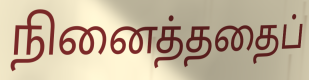
நினைத்ததைப்